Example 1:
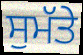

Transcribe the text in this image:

ਸੁਮੱਤੇ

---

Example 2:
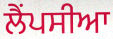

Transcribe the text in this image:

ਲੈਂਪਸੀਆ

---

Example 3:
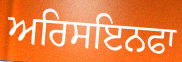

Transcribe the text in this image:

ਅਰਿਸਇਨਫਾ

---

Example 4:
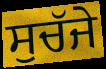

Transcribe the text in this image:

ਸੁਚੱਜੇ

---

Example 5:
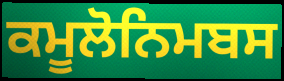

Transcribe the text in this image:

ਕਮੂਲੋਨਿਮਬਸ